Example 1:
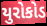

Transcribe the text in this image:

યુરોકોડ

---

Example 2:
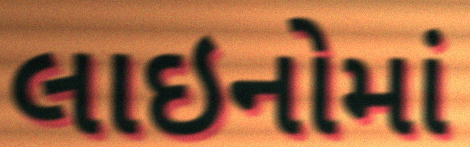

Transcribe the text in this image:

લાઇનોમાં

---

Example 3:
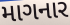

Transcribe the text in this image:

માગનાર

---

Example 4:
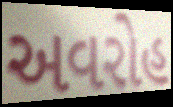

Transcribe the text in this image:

અવરોહ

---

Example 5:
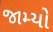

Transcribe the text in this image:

જામ્યો